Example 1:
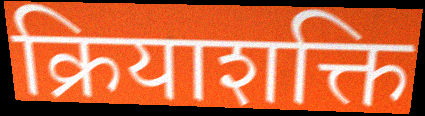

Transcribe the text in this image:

क्रियाशक्ति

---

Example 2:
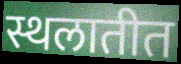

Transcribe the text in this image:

स्थलातीत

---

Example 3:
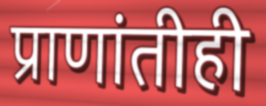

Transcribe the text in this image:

प्राणांतीही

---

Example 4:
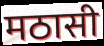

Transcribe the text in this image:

मठासी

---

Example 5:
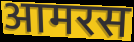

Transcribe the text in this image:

आमरस